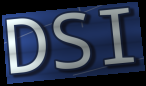
DSI